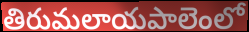
తిరుమలాయపాలెంలో